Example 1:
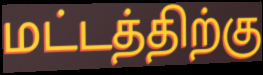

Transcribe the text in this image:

மட்டத்திற்கு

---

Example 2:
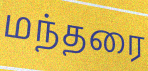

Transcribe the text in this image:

மந்தரை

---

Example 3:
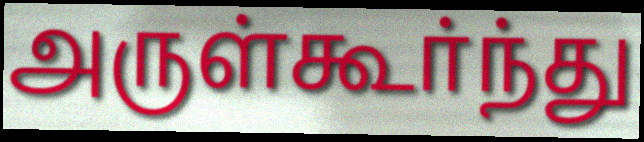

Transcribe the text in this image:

அருள்கூர்ந்து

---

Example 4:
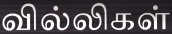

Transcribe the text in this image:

வில்லிகள்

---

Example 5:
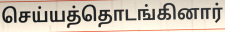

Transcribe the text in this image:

செய்யத்தொடங்கினார்